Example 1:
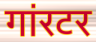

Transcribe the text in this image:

गांरटर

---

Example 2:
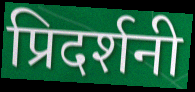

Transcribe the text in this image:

प्रिदर्शनी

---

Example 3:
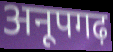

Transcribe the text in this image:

अनूपगढ़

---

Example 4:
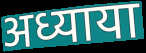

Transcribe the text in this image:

अध्याया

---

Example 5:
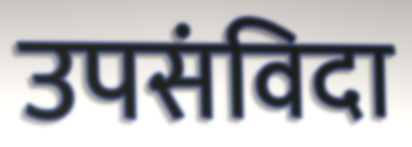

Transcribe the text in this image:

उपसंविदा